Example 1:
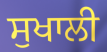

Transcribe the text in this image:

ਸੁਖਾਲੀ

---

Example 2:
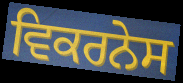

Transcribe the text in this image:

ਵਿਕਰਨੇਸ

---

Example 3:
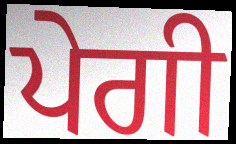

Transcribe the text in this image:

ਪੇਗੀ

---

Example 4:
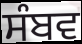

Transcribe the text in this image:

ਸੰਬਵ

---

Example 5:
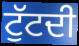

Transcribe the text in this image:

ਟੁੱਟਦੀ